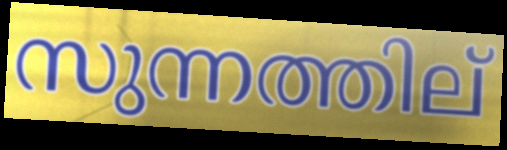
സുന്നത്തില്